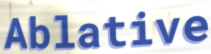
Ablative